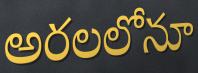
అరలలోనూ